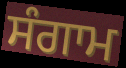
ਸੰਗਾਮ